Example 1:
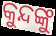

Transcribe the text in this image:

କୁନ୍ଦଙ୍କୁ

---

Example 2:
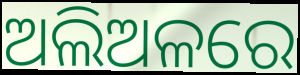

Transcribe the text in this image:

ଅଲିଅଳରେ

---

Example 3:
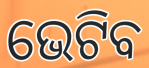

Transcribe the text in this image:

ଭେଟିବ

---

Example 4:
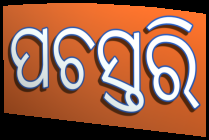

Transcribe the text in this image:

ପଚସ୍ତରି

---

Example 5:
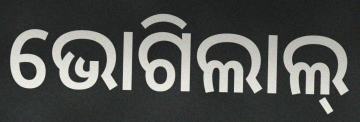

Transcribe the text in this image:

ଭୋଗିଲାଲ୍